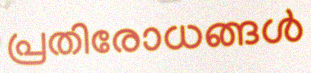
പ്രതിരോധങ്ങൾ